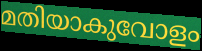
മതിയാകുവോളം